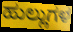
ಹುಲ್ಲುಗಳ